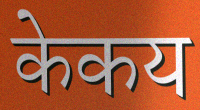
केकय